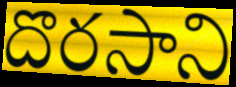
దొరసాని